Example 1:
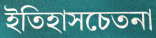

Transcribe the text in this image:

ইতিহাসচেতনা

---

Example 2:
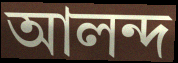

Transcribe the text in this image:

আলন্দ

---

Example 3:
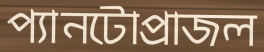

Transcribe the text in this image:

প্যানটোপ্রাজল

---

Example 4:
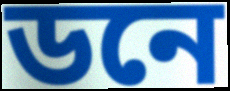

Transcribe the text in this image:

ডনে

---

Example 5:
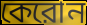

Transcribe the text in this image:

কেরোন